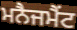
ਮਨੈਜਮੈਂਟ